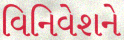
વિનિવેશને